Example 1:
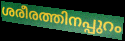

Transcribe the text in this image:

ശരീരത്തിനപ്പുറം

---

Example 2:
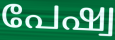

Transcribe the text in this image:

പേഷ്വ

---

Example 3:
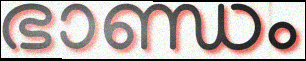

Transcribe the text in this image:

ഭാണ്ഡം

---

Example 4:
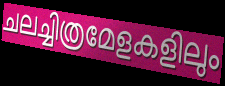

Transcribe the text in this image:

ചലച്ചിത്രമേളകളിലും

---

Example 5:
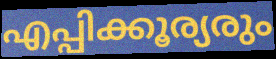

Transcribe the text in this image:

എപ്പിക്കൂര്യരും